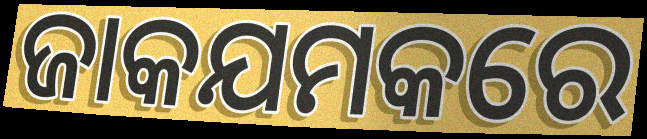
ଜାକଯମକରେ